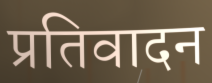
प्रतिवादन